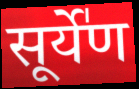
सूर्ये॑ण